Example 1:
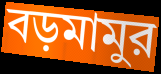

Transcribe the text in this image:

বড়মামুর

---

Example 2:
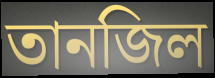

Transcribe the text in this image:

তানজিল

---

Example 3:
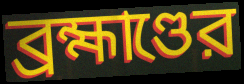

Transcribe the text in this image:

ব্রহ্মাণ্ডের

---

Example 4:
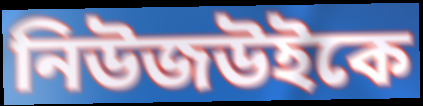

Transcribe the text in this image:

নিউজউইকে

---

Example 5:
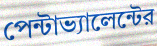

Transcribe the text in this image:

পেন্টাভ্যালেন্টের